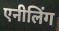
एनीलिंग